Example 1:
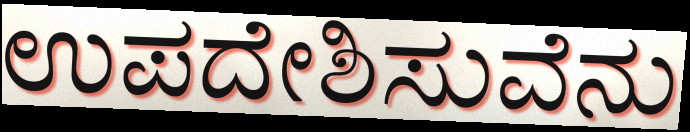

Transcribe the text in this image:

ಉಪದೇಶಿಸುವೆನು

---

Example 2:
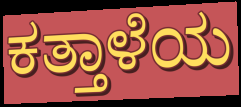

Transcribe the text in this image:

ಕತ್ತಾಳೆಯ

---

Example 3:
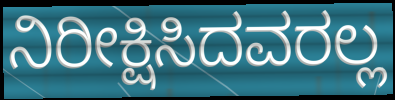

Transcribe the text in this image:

ನಿರೀಕ್ಷಿಸಿದವರಲ್ಲ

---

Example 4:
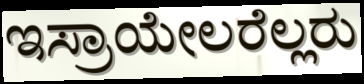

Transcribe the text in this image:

ಇಸ್ರಾಯೇಲರೆಲ್ಲರು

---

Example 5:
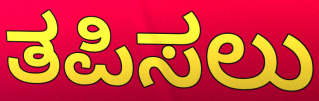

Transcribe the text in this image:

ತಪಿಸಲು